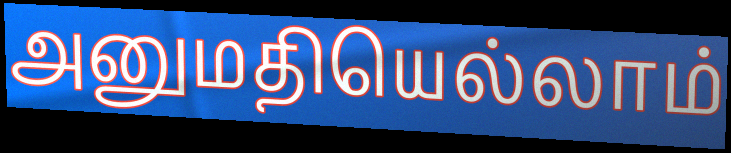
அனுமதியெல்லாம்